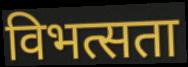
विभत्सता